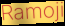
Ramoji